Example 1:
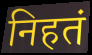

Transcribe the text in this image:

निहतं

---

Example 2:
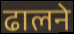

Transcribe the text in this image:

ढालने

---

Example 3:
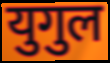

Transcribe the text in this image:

युगुल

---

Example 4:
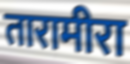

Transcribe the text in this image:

तारामीरा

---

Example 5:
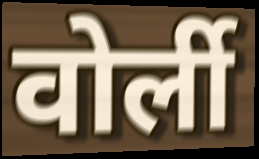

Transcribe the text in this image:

वोर्ली